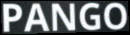
PANGO